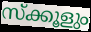
സ്ക്കൂളും